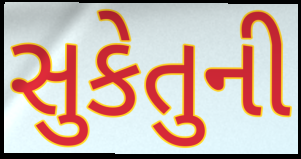
સુકેતુની